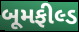
બૂમફીલ્ડ